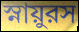
স্নায়ুরস